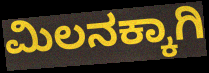
ಮಿಲನಕ್ಕಾಗಿ